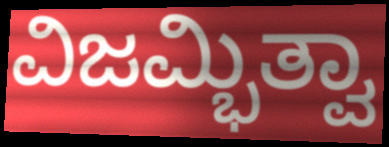
ವಿಜಮ್ಭಿತ್ವಾ